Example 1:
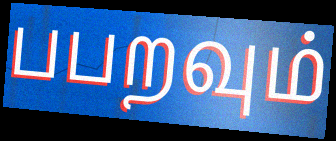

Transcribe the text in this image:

பபறவும்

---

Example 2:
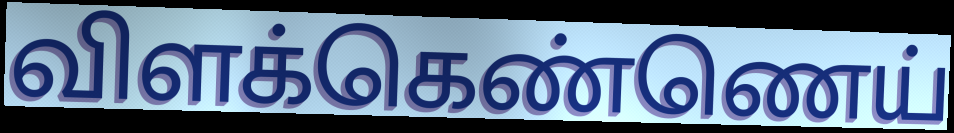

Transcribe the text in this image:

விளக்கெண்ணெய்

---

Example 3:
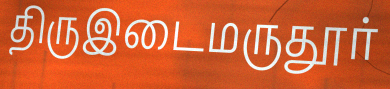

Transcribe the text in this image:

திருஇடைமருதூர்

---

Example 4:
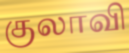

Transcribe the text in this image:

குலாவி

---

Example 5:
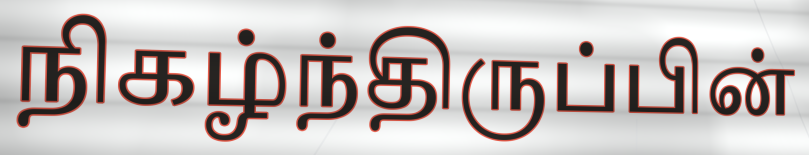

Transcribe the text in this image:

நிகழ்ந்திருப்பின்